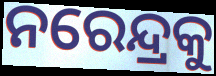
ନରେନ୍ଦ୍ରକୁ